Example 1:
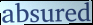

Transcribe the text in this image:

absured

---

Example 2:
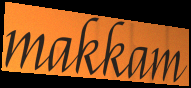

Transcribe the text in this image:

makkam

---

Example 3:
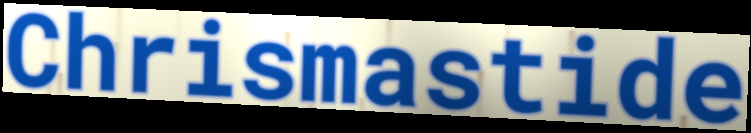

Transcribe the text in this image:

Chrismastide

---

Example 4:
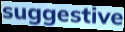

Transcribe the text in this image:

suggestive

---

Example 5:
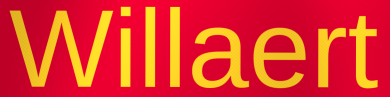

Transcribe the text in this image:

Willaert